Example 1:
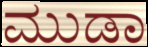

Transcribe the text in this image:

ಮುಡಾ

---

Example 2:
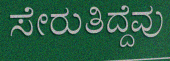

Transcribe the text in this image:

ಸೇರುತಿದ್ದೆವು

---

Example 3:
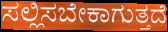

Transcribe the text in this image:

ಸಲ್ಲಿಸಬೇಕಾಗುತ್ತದೆ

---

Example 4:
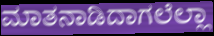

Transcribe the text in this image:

ಮಾತನಾಡಿದಾಗಲೆಲ್ಲಾ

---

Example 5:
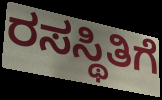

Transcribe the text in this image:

ರಸಸ್ಥಿತಿಗೆ